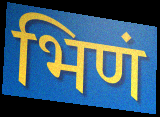
भिणं